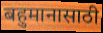
बहुमानासाठी